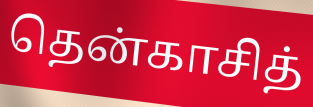
தென்காசித்